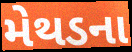
મેથડના